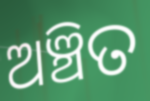
ଅଞ୍ଚିତ